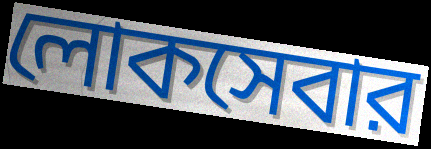
লোকসেবার